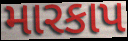
મારકાપ